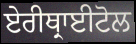
ਏਰੀਥ੍ਰਾਈਟੋਲ